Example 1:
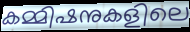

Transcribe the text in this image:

കമ്മിഷനുകളിലെ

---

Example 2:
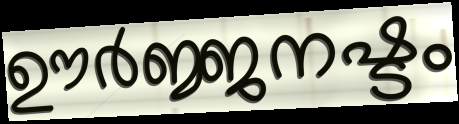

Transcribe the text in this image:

ഊർജ്ജനഷ്ടം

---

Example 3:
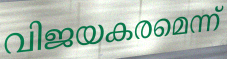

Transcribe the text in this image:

വിജയകരമെന്ന്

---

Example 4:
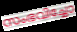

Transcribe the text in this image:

സംഭവിച്ചോ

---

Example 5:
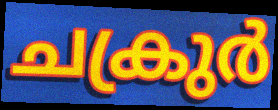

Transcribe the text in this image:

ചക്രുർ